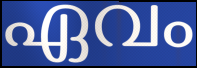
ഏവം